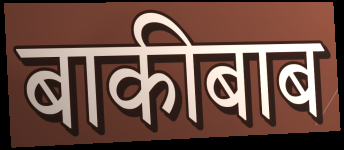
बाकीबाब